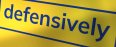
defensively